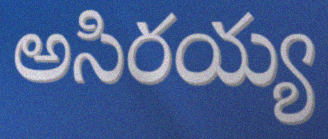
అసిరయ్య